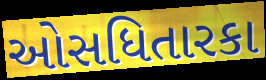
ઓસધિતારકા